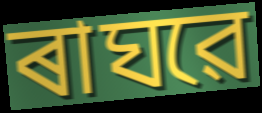
ৰাঘৱে